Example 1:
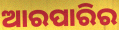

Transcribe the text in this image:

ଆରପାରିର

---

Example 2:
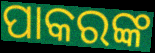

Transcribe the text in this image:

ପାକରଙ୍କ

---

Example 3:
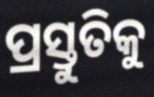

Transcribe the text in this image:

ପ୍ରସ୍ତୁତିକୁ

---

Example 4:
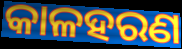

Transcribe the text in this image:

କାଳହରଣ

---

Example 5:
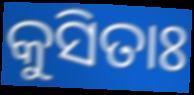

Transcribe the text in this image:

କୁସିତାଃ